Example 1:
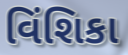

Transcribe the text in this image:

વિંશિકા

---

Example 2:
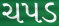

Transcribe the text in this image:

ચપડ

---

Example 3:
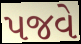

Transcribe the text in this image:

પજવે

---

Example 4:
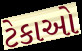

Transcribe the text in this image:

ટેકાઓ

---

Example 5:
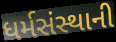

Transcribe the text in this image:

ધર્મસંસ્થાની